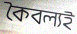
কৈবল্যই